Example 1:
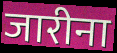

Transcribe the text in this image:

जारीना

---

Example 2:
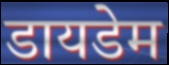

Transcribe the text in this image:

डायडेम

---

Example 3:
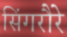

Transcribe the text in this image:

सिंगरौरे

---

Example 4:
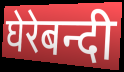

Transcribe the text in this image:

घेरेबन्दी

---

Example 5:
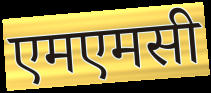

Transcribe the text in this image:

एमएमसी